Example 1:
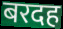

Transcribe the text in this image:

बरदह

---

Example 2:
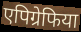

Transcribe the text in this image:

एपिग्रेफिया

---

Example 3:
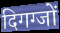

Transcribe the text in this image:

दिगग्जों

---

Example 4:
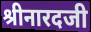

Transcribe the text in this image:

श्रीनारदजी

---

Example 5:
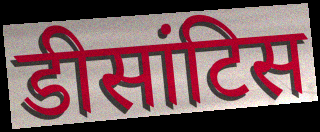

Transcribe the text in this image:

डीसांटिस